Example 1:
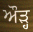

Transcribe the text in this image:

ਔੜ੍ਹ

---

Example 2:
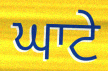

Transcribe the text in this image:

ਘਾਟੇ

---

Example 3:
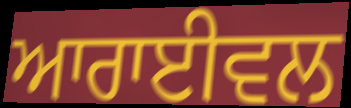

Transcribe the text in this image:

ਆਰਾਈਵਲ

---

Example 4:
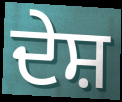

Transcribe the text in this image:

ਦੇਸ਼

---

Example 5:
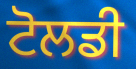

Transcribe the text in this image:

ਟੋਲਡੀ